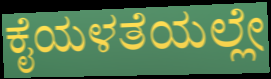
ಕೈಯಳತೆಯಲ್ಲೇ